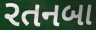
રતનબા